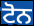
ਟੋਨ